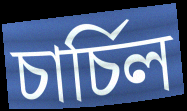
চাৰ্চিল